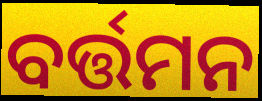
ବର୍ତ୍ତମନ